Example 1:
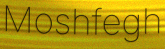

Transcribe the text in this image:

Moshfegh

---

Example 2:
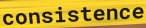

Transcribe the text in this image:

consistence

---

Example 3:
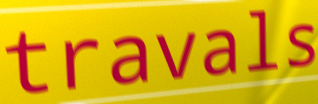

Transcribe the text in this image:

travals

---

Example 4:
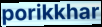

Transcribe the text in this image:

porikkhar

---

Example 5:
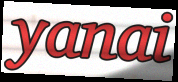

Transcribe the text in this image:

yanai